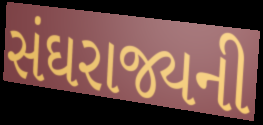
સંઘરાજ્યની